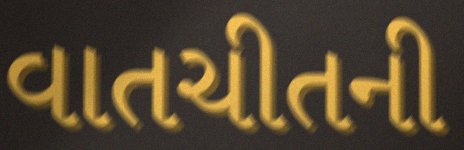
વાતચીતની